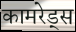
कामरेड्स